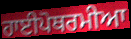
ਹਾਈਪੋਥਰਮੀਆ